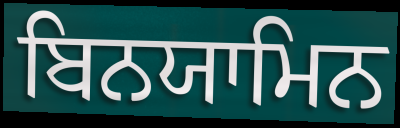
ਬਿਨਯਾਮਿਨ